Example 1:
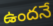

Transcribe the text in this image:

ఉందనే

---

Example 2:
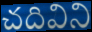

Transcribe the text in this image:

చదివిని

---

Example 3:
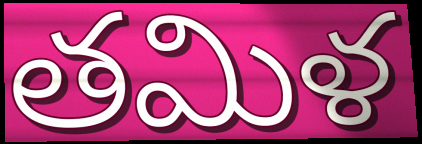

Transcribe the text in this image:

తమిళ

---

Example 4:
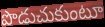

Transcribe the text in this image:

పొడుచుకుంటూ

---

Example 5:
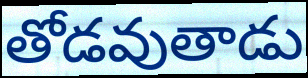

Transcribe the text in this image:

తోడవుతాడు